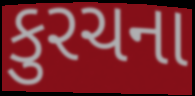
કુરચના